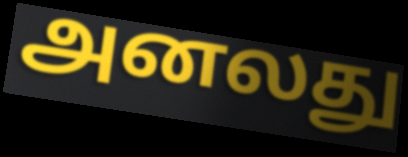
அனலது